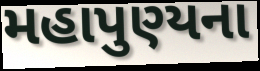
મહાપુણ્યના